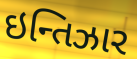
ઇન્તિઝાર